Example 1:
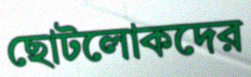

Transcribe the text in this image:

ছোটলোকদের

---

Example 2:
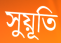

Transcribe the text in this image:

সুয়ূতি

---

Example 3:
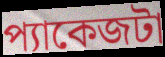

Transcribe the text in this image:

প্যাকেজটা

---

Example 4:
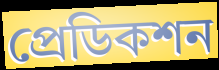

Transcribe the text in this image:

প্রেডিকশন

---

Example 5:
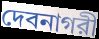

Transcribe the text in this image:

দেবনাগরী